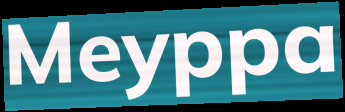
Meyppa